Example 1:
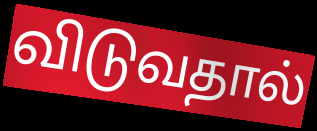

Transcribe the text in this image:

விடுவதால்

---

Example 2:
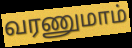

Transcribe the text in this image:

வரணுமாம்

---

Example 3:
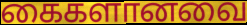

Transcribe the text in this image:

கைகளானவை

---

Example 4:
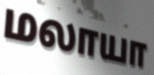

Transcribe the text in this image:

மலாயா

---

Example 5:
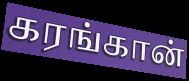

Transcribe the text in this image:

கரங்கான்